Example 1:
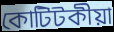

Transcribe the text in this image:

কোটিটকীয়া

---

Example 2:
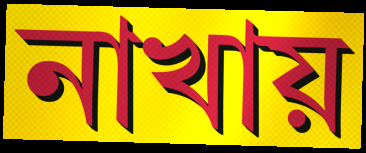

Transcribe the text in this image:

নাখায়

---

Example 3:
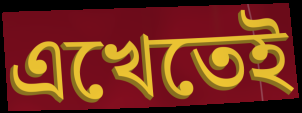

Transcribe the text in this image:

এখেতেই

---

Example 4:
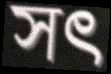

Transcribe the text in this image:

সৎ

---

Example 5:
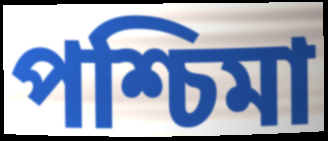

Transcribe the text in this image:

পশ্চিমা